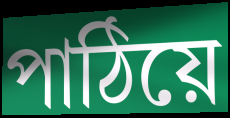
পাঠিয়ে